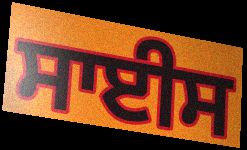
ਸਾਈਸ